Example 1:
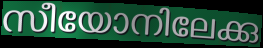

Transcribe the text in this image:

സീയോനിലേക്കു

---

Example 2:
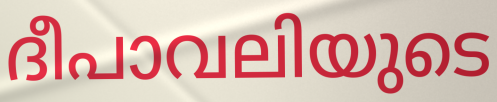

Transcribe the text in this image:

ദീപാവലിയുടെ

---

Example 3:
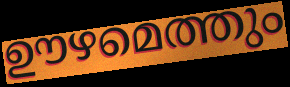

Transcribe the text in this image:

ഊഴമെത്തും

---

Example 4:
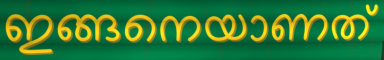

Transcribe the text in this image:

ഇങ്ങനെയാണത്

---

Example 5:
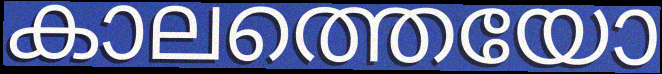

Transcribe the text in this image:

കാലത്തെയോ